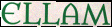
ELLAM